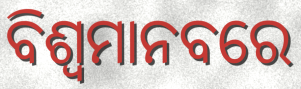
ବିଶ୍ୱମାନବରେ